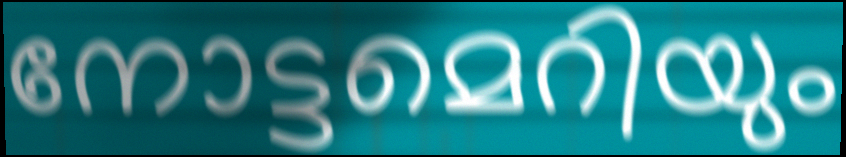
നോട്ടമെറിയും